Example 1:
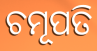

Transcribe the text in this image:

ଚମୂପତି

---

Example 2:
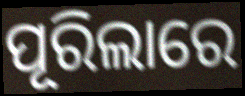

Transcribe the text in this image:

ପୂରିଲାରେ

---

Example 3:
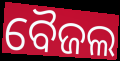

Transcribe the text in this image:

ବୈଜଲ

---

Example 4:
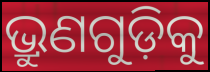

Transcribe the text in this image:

ଭ୍ରୁଣଗୁଡ଼ିକୁ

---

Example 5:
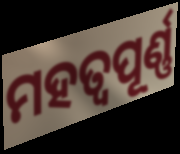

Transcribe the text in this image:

ମହତ୍ବପୂର୍ଣ୍ଣ